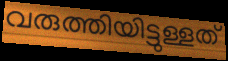
വരുത്തിയിട്ടുള്ളത്